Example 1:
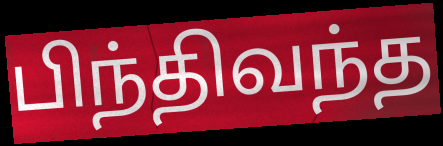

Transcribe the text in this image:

பிந்திவந்த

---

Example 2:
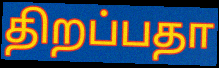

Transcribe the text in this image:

திறப்பதா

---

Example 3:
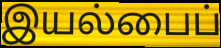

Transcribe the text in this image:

இயல்பைப்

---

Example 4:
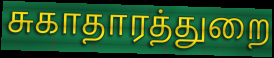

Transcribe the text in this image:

சுகாதாரத்துறை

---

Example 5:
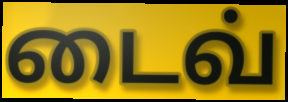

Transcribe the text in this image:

டைவ்